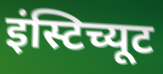
इंस्टिच्यूट